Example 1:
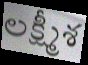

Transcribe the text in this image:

లక్ష్మీశ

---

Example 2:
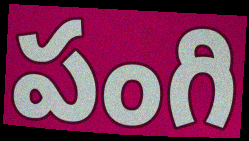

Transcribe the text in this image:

పంగి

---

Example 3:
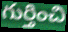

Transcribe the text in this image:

గుర్తించి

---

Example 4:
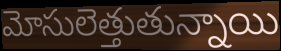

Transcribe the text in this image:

మోసులెత్తుతున్నాయి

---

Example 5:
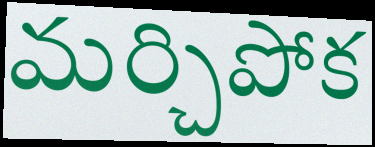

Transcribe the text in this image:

మర్చిపోక